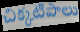
చిక్కటిపాలు